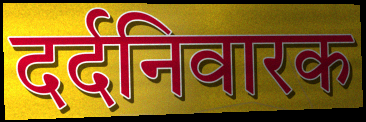
दर्दनिवारक